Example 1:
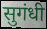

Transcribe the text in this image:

सुगंधी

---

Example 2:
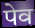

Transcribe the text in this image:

पेव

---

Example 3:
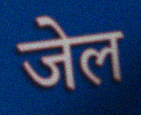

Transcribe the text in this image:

जेल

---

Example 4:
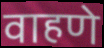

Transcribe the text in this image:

वाहणे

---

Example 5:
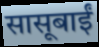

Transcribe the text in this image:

सासूबाईं